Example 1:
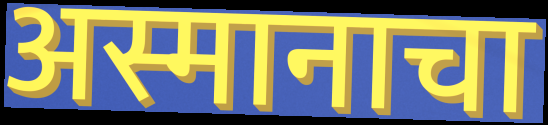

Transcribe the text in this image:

अस्मानाचा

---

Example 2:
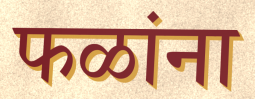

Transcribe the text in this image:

फळांना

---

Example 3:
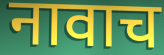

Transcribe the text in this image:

नावाच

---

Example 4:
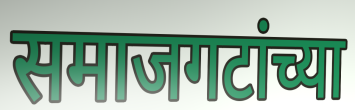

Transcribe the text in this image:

समाजगटांच्या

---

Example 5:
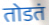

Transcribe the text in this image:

तोडतं